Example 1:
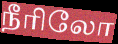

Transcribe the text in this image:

நீரிலோ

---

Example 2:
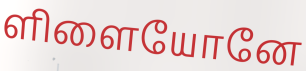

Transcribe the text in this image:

ளிளையோனே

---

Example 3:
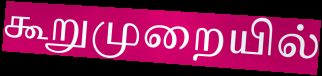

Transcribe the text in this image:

கூறுமுறையில்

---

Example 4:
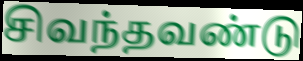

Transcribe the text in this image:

சிவந்தவண்டு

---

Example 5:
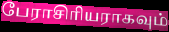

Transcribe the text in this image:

பேராசிரியராகவும்